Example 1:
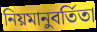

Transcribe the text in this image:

নিয়মানুবর্তিতা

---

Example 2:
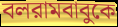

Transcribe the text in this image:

বলরামবাবুকে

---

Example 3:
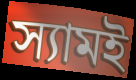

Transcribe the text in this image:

স্যামই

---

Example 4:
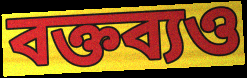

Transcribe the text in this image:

বক্তব্যও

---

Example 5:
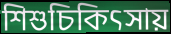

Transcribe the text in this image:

শিশুচিকিৎসায়